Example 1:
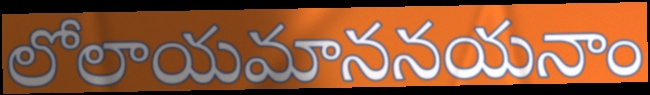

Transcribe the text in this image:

లోలాయమాననయనాం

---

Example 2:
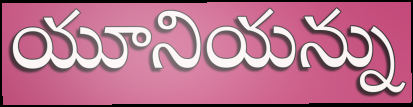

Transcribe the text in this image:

యూనియన్ను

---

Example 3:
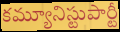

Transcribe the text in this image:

కమ్యూనిస్టుపార్టీ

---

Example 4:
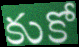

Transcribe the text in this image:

కుకో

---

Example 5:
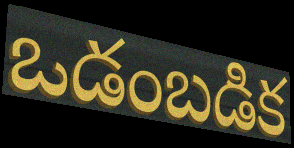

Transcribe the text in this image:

ఒడంబడిక